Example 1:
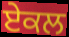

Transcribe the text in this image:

ਏਕਲ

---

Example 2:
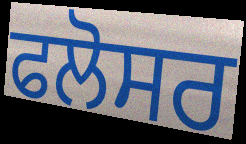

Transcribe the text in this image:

ਫਲੋਸਰ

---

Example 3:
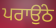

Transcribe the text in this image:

ਪਰਾਉਂਠੇ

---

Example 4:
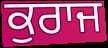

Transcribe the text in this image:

ਕੁਰਾਜ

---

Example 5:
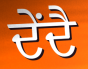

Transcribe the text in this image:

ਦੇਂਦੈ